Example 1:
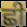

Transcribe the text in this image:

ਛੀ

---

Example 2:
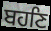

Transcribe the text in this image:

ਬਹਣਿ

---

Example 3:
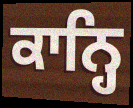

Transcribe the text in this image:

ਕਾਨ੍ਹਿ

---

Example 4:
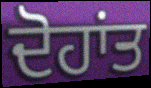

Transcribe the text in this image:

ਦੋਹਾਂਤ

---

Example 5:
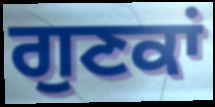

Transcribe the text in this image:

ਗੁਣਕਾਂ